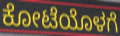
ಕೋಟೆಯೊಳಗೆ